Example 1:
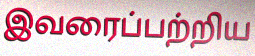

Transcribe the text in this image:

இவரைப்பற்றிய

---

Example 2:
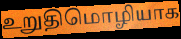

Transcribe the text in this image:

உறுதிமொழியாக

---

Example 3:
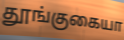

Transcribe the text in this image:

தூங்குகையா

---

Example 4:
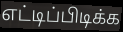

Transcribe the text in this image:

எட்டிப்பிடிக்க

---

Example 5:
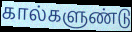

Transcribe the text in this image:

கால்களுண்டு